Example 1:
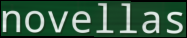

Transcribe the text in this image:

novellas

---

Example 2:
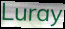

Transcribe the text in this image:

Luray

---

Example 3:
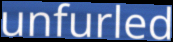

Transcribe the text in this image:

unfurled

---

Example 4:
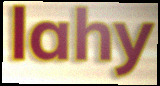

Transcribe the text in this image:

lahy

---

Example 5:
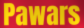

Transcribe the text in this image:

Pawars